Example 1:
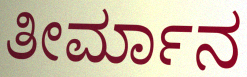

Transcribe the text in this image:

ತೀರ್ಮಾನ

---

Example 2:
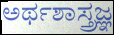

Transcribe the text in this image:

ಅರ್ಥಶಾಸ್ತ್ರಜ್ಞ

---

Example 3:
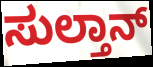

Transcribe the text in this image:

ಸುಲ್ತಾನ್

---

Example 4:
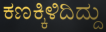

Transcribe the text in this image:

ಕಣಕ್ಕಿಳಿದಿದ್ದು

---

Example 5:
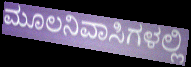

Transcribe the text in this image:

ಮೂಲನಿವಾಸಿಗಳಲ್ಲಿ